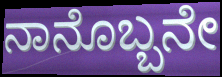
ನಾನೊಬ್ಬನೇ